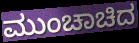
ಮುಂಚಾಚಿದ